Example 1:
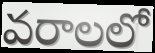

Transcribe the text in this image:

వరాలలో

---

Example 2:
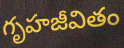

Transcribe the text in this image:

గృహజీవితం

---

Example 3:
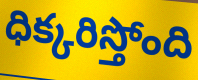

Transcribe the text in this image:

ధిక్కరిస్తోంది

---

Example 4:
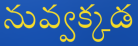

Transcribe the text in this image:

నువ్వక్కడ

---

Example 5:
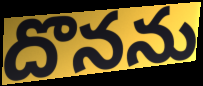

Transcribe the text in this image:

దొనను